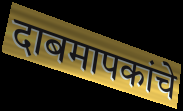
दाबमापकांचे